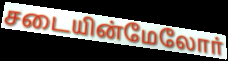
சடையின்மேலோர்